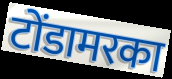
टोंडामरका